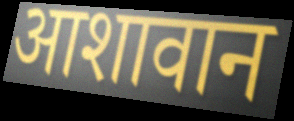
आशावान